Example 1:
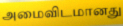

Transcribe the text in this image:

அமைவிடமானது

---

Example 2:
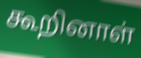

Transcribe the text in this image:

கூறினாள்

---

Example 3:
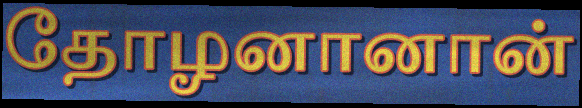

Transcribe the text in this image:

தோழனானான்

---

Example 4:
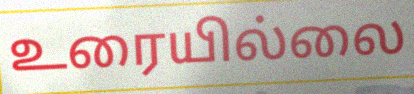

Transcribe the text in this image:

உரையில்லை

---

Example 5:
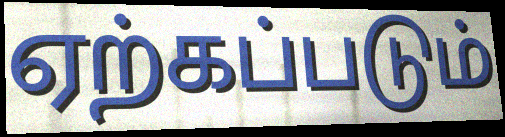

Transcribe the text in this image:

ஏற்கப்படும்